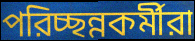
পরিচ্ছন্নকর্মীরা